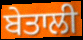
ਬੇਤਾਲੀ